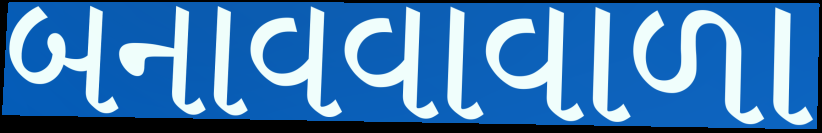
બનાવવાવાળા